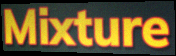
Mixture